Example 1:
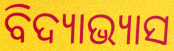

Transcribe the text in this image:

ବିଦ୍ୟାଭ୍ୟାସ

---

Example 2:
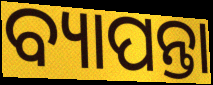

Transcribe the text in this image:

ବ୍ୟାପନ୍ତା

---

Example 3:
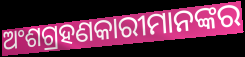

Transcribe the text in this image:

ଅଂଶଗ୍ରହଣକାରୀମାନଙ୍କର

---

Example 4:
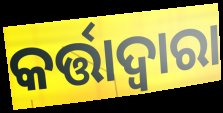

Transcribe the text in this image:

କର୍ତ୍ତାଦ୍ଵାରା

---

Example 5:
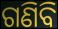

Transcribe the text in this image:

ଗଣିବି